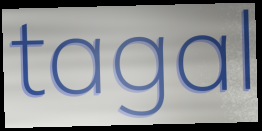
tagal